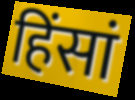
हिंसां